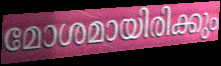
മോശമായിരിക്കും